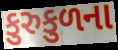
કુરુકુળના